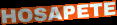
HOSAPETE